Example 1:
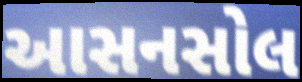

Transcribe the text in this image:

આસનસોલ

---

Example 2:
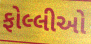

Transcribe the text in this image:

ફોલ્લીઓ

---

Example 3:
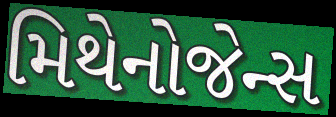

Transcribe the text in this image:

મિથેનોજેન્સ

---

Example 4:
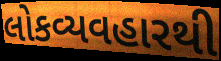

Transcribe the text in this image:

લોકવ્યવહારથી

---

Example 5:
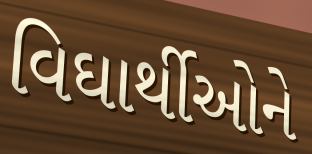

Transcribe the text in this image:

વિઘાર્થીઓને